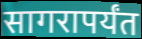
सागरापर्यंत